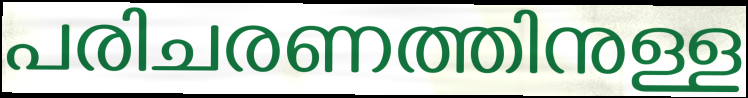
പരിചരണത്തിനുള്ള